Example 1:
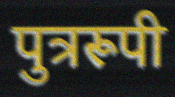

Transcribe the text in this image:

पुत्ररूपी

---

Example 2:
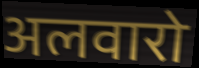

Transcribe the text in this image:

अलवारो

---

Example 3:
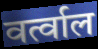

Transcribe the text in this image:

वर्त्वाल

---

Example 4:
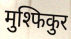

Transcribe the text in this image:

मुश्फिकुर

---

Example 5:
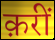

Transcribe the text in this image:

क़रीं